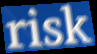
risk